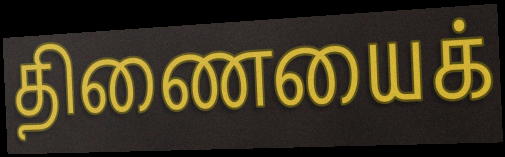
திணையைக்